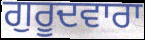
ਗੁਰੂਦਵਾਰਾ